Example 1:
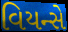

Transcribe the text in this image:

વિયન્સે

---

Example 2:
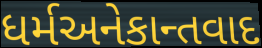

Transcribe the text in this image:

ધર્મઅનેકાન્તવાદ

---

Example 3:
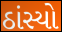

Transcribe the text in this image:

ઠાંસ્યો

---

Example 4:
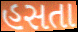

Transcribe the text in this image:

હસતા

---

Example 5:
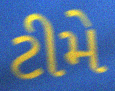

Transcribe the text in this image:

ટીમે